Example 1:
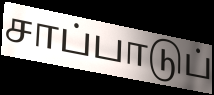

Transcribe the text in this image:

சாப்பாடுப்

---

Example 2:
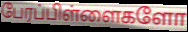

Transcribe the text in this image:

பேரப்பிள்ளைகளோ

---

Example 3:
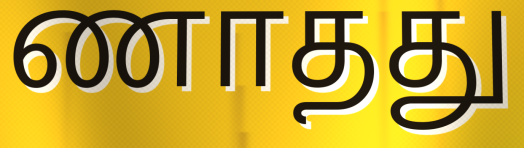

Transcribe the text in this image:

ணாதது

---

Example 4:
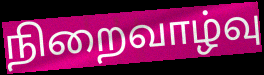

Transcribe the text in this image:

நிறைவாழ்வு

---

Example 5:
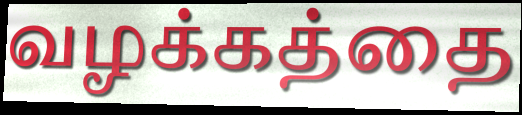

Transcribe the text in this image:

வழக்கத்தை